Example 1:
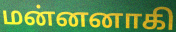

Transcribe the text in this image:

மன்னனாகி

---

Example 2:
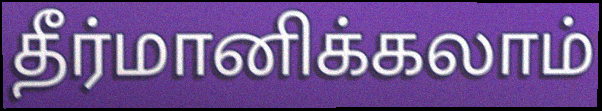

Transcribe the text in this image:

தீர்மானிக்கலாம்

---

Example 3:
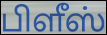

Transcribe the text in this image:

பிளீஸ்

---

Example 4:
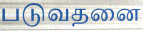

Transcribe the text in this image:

படுவதனை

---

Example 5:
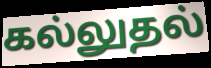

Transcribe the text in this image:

கல்லுதல்